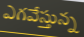
ఎగవేస్తున్న